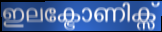
ഇലക്ട്രോണിക്സ്